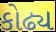
કોઢ્ય